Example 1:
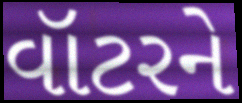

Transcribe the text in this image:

વૉટરને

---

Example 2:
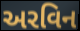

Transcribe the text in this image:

અરવિન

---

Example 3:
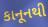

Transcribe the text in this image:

કાનૂનથી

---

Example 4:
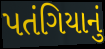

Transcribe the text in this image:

પતંગિયાનું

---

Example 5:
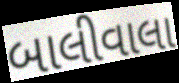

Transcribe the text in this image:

બાલીવાલા